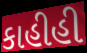
કાહીહી